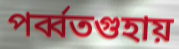
পর্ব্বতগুহায়